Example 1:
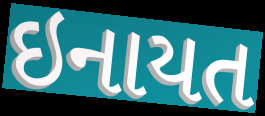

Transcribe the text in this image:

ઇનાયત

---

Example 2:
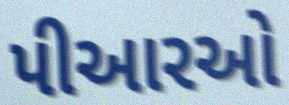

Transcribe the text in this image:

પીઆરઓ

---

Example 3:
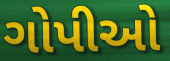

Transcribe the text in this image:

ગોપીઓ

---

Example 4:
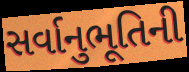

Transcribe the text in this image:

સર્વાનુભૂતિની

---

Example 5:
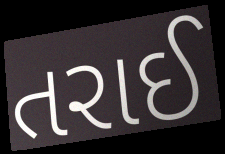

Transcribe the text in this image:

તરાઈ